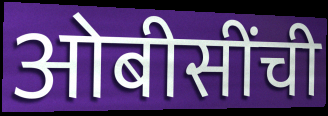
ओबीसींची